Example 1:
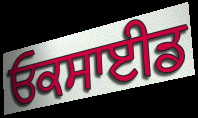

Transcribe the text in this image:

ਓਕਸਾਈਡ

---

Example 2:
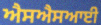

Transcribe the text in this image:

ਐਸਐਸਆਈ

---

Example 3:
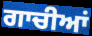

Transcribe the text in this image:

ਗਾਚੀਆਂ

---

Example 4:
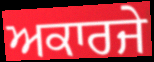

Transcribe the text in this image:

ਅਕਾਰਜੇ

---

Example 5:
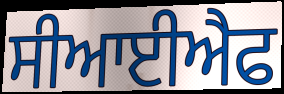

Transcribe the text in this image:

ਸੀਆਈਐਫ